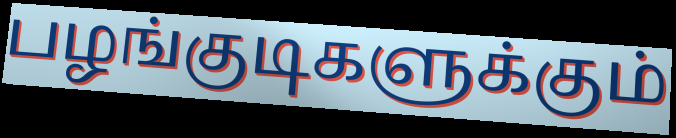
பழங்குடிகளுக்கும்